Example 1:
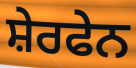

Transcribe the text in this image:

ਸ਼ੇਰਫੇਨ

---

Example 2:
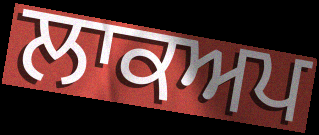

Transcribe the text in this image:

ਲਾਕਅਪ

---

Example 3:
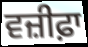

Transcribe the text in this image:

ਵਜ਼ੀਫ਼ਾ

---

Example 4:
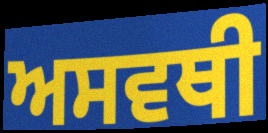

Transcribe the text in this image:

ਅਸਵਥੀ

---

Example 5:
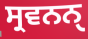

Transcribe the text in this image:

ਸ੍ਰਵਨਨੑ